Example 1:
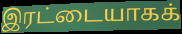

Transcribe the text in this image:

இரட்டையாகக்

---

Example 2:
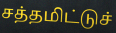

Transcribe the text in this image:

சத்தமிட்டுச்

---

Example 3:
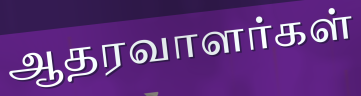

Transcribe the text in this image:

ஆதரவாளர்கள்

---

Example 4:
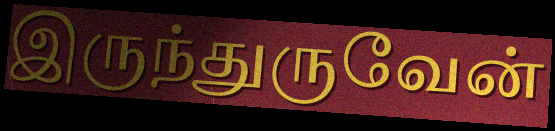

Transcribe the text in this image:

இருந்துருவேன்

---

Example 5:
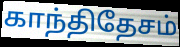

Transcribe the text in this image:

காந்திதேசம்